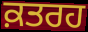
ਕ਼ਤਰਹ